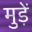
मुड़ें